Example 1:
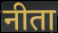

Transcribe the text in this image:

नीता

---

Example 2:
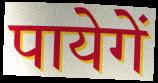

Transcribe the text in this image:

पायेगें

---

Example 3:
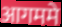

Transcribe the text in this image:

आगममे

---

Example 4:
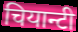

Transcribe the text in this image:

चियान्टी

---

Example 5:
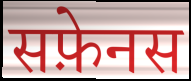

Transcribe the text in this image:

सफ़ेनस